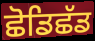
ਛੋਡਿਛੱਡ